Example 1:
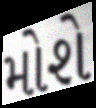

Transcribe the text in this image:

મોશે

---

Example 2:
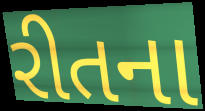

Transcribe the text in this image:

રીતના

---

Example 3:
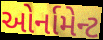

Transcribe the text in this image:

ઓર્નામેન્ટ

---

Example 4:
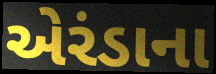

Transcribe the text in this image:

એરંડાના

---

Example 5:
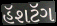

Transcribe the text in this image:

હૅશટૅગ